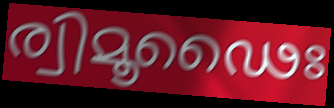
ര്വിമൂഢൈഃ